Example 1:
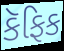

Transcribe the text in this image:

કૅફિક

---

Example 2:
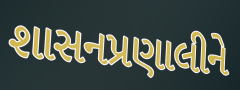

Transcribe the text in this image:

શાસનપ્રણાલીને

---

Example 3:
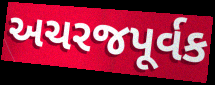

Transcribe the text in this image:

અચરજપૂર્વક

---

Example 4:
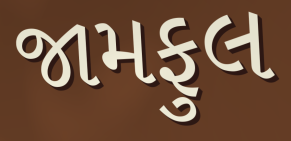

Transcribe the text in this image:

જામફુલ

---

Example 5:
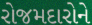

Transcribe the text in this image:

રોજમદારોને